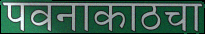
पवनाकाठचा